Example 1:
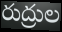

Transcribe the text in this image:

రుద్రుల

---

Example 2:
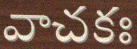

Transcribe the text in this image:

వాచకః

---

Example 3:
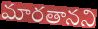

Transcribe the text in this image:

మారతానని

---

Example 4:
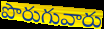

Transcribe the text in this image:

పొరుగువారు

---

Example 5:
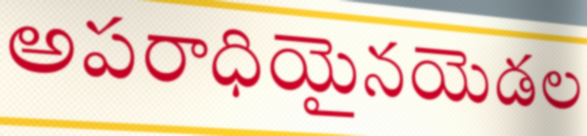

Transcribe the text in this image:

అపరాధియైనయెడల